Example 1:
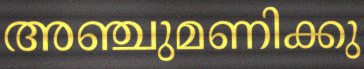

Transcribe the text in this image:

അഞ്ചുമണിക്കു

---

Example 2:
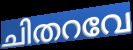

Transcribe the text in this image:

ചിതറവേ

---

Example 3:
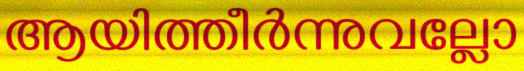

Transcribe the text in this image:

ആയിത്തീർന്നുവല്ലോ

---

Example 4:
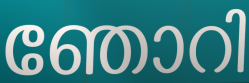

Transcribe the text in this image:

ഞോറി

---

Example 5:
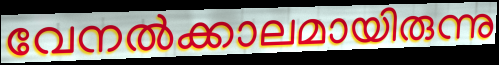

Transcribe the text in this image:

വേനൽക്കാലമായിരുന്നു